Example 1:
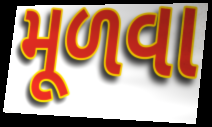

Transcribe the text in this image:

મૂળવા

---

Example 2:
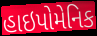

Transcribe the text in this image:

હાઇપોમેનિક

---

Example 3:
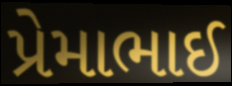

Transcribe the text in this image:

પ્રેમાભાઈ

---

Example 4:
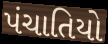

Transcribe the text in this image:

પંચાતિયો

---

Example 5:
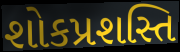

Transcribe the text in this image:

શોકપ્રશસ્તિ